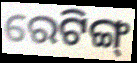
ରେଟିଙ୍ଗ୍